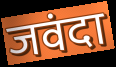
जवंदा